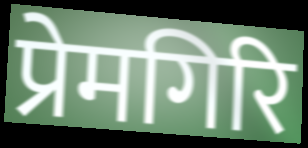
प्रेमगिरि